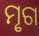
ମୃଗ